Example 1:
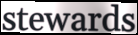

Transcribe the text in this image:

stewards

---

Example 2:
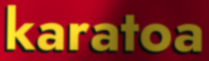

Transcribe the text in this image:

karatoa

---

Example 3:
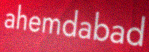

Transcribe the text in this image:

ahemdabad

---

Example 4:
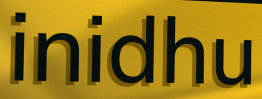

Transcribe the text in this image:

inidhu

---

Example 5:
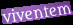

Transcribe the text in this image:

viventem